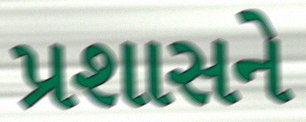
પ્રશાસને